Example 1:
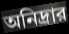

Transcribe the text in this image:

অনিদ্রার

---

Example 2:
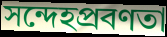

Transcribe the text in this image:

সন্দেহপ্রবণতা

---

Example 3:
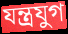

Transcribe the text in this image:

যন্ত্রযুগ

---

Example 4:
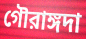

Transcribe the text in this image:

গৌরাঙ্গদা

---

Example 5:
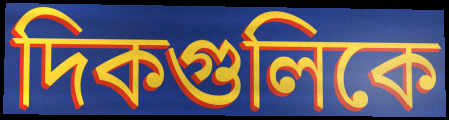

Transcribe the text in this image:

দিকগুলিকে